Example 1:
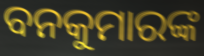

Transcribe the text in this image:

ବନକୁମାରଙ୍କ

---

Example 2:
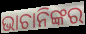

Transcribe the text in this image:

ଭାଚାନିଙ୍କର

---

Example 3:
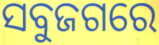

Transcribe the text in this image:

ସବୁଜଗରେ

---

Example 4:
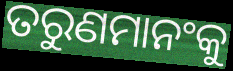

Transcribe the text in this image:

ତରୁଣମାନଂକୁ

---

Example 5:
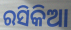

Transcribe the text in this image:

ରସିକିଆ